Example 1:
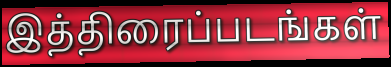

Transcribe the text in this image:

இத்திரைப்படங்கள்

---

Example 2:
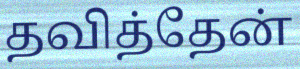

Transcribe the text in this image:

தவித்தேன்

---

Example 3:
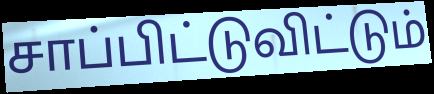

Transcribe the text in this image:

சாப்பிட்டுவிட்டும்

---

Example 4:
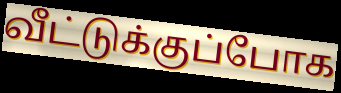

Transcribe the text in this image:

வீட்டுக்குப்போக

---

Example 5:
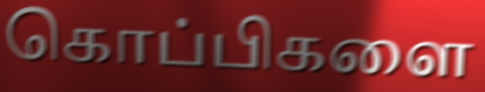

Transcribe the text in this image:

கொப்பிகளை